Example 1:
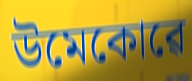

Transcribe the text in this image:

উমেকোৱে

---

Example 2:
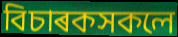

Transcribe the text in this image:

বিচাৰকসকলে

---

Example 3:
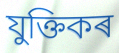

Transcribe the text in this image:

যুক্তিকৰ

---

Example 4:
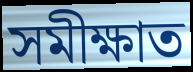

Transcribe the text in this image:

সমীক্ষাত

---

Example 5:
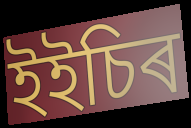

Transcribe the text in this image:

ইইচিৰ